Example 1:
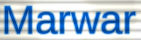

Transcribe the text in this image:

Marwar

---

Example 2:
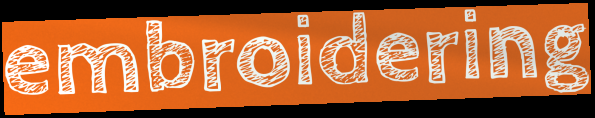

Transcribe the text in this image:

embroidering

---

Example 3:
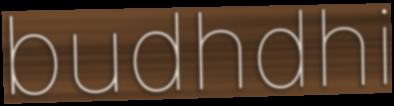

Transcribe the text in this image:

budhdhi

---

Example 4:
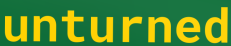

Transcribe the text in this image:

unturned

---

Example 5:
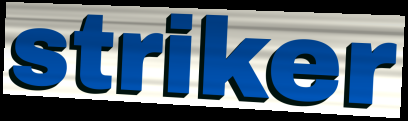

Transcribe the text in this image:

striker